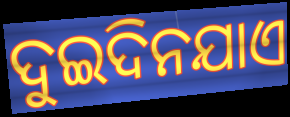
ଦୁଇଦିନଯାଏ